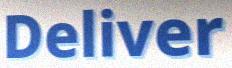
Deliver